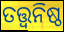
ତତ୍ତ୍ୱନିଷ୍ଠ